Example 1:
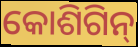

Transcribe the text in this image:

କୋଶିଗିନ୍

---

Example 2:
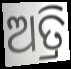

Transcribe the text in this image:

ଅତ୍ରି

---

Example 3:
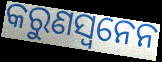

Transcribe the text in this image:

କରୁଣସ୍ଵନେନ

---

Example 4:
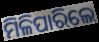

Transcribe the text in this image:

ମିଳିପାରିଲେ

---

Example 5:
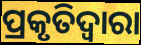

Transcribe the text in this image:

ପ୍ରକୃତିଦ୍ୱାରା